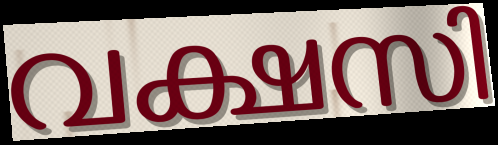
വക്ഷസി